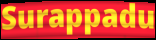
Surappadu